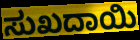
ಸುಖದಾಯಿ